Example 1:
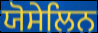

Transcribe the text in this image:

ਯੋਸੇਲਿਨ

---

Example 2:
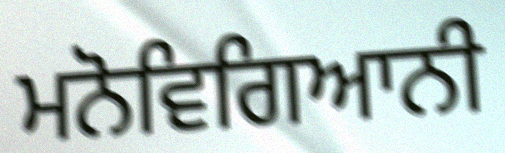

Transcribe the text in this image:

ਮਨੋਵਿਗਿਆਨੀ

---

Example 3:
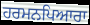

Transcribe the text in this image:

ਹਰਮਨਪਿਆਰਾ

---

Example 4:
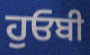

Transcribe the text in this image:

ਹੁਓਬੀ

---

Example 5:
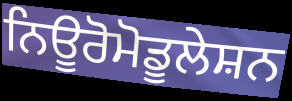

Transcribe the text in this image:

ਨਿਊਰੋਮੋਡੂਲੇਸ਼ਨ